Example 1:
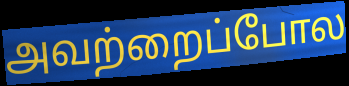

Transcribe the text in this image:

அவற்றைப்போல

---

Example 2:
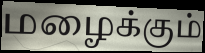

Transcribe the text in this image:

மழைக்கும்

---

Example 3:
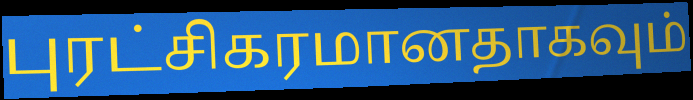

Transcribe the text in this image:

புரட்சிகரமானதாகவும்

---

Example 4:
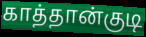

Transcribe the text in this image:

காத்தான்குடி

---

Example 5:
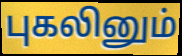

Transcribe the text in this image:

புகலினும்